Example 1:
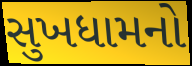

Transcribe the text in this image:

સુખધામનો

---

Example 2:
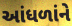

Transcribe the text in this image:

આંધળાંને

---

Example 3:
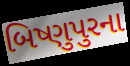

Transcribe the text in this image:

બિષ્ણુપુરના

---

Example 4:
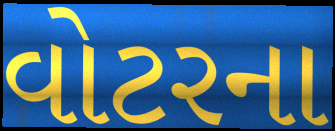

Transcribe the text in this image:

વોટરના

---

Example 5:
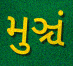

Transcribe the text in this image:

મુઞ્ચં